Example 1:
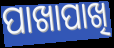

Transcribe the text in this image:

ପାଖାପାଖି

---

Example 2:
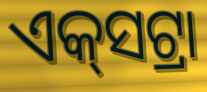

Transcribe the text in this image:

ଏକ୍‍ସଟ୍ରା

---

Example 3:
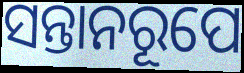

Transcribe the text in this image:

ସନ୍ତାନରୂପେ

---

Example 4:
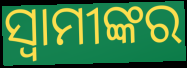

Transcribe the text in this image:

ସ୍ୱାମୀଙ୍କର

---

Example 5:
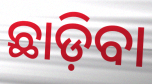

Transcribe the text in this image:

ଛାଡ଼ିବା